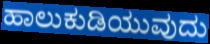
ಹಾಲುಕುಡಿಯುವುದು